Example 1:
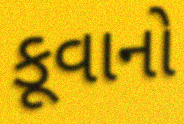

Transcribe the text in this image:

કૂવાનો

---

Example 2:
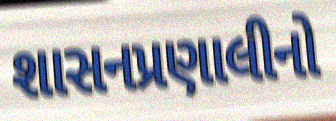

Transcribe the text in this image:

શાસનપ્રણાલીનો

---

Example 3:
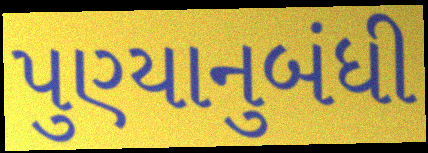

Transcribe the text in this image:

પુણ્યાનુબંધી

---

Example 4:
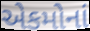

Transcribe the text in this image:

એકમોનાં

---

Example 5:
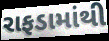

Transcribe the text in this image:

રાફડામાંથી